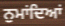
ਨੁਮਾਂਦਿਆਂ